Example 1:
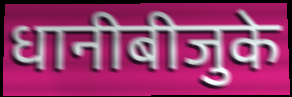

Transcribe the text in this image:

धानीबीजुके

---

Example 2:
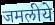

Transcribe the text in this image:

जमलीये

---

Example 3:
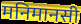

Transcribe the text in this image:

मनिमानसी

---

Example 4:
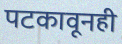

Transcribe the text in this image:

पटकावूनही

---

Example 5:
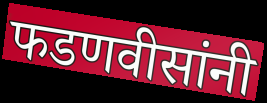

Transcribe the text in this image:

फडणवीसांनी